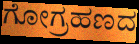
ಗೋಗ್ರಹಣದ